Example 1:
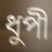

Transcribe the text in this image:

ধুপী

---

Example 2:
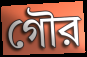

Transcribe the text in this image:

গৌর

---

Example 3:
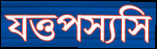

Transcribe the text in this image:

যত্তপস্যসি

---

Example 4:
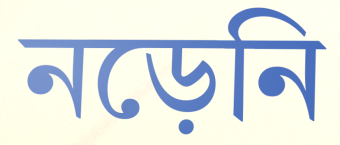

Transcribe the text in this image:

নড়েনি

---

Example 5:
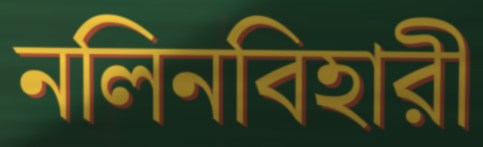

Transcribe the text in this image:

নলিনবিহারী